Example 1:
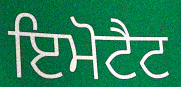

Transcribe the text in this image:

ਇਮੋਟੈਟ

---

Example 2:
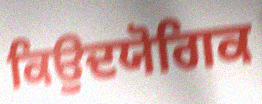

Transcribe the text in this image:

ਕਿਉਦਯੋਗਿਕ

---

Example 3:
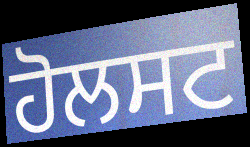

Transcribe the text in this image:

ਹੋਲਸਟ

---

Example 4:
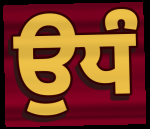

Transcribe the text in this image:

ਉਧੰ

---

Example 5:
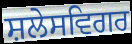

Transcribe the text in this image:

ਸ਼ਲੇਸਵਿਗਰ